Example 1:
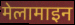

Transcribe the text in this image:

मेलामाइन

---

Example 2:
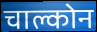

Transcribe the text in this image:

चाल्कोन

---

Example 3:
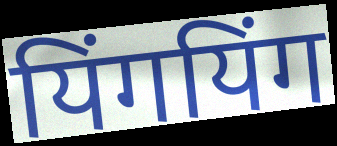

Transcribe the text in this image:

यिंगयिंग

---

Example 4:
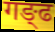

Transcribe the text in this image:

गङ्ढ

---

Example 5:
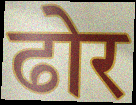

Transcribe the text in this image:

ढोर